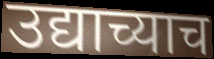
उद्याच्याच